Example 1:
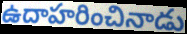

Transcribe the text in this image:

ఉదాహరించినాడు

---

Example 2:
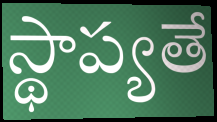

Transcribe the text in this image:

స్థాప్యతే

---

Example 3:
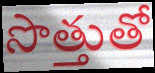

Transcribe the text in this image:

సొత్తుతో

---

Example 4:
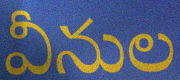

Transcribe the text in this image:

వీనుల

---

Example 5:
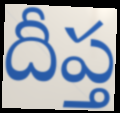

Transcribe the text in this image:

దీప్త